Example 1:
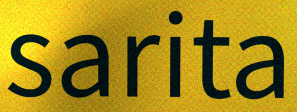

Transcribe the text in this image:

sarita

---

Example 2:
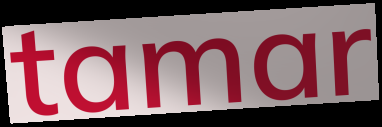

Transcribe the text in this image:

tamar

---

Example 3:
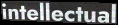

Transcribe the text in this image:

intellectual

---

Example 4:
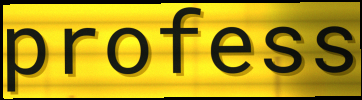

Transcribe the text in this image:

profess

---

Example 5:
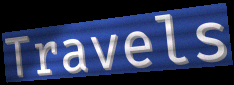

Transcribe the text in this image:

Travels